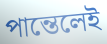
পান্তেলেই